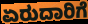
ಏರುದಾರಿಗೆ